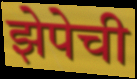
झेपेची